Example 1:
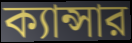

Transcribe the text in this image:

ক্যান্সার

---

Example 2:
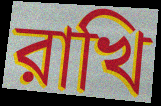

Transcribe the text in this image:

রাখি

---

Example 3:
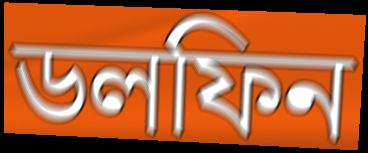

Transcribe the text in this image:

ডলফিন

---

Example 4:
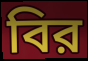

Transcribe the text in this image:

বির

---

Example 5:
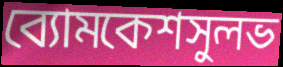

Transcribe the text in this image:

ব্যোমকেশসুলভ